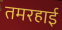
तमरहाई